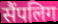
सैंपलिग